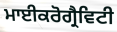
ਮਾਈਕਰੋਗ੍ਰੈਵਿਟੀ